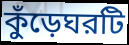
কুঁড়েঘরটি